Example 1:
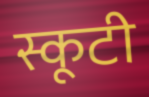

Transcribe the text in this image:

स्कूटी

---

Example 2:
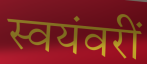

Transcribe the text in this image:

स्वयंवरीं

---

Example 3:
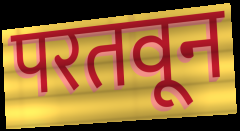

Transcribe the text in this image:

परतवून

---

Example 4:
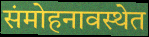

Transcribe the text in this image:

संमोहनावस्थेत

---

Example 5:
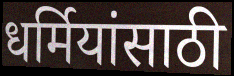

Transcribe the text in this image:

धर्मियांसाठी